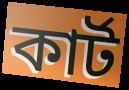
কার্ট